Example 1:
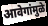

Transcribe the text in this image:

आवेगांमुळे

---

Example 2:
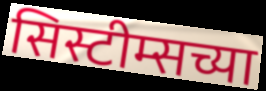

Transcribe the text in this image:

सिस्टीम्सच्या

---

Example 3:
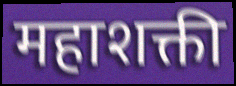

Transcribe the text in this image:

महाशक्ती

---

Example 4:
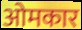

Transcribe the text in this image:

ओमकार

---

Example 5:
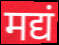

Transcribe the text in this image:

मद्यं